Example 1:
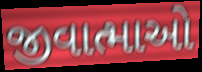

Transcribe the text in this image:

જીવાત્માઓ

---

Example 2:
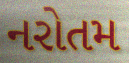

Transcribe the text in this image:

નરોતમ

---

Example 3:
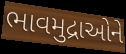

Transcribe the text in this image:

ભાવમુદ્રાઓને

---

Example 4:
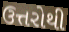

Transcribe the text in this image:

ઉત્તરોથી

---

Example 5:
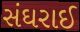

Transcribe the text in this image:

સંઘરાઈ